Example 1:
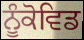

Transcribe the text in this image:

ਨੂੰਕੋਵਿਡ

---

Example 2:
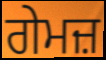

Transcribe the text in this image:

ਗੇਮਜ਼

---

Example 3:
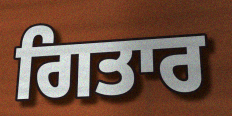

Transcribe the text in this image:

ਗਿਤਾਰ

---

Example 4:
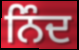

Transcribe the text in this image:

ਨਿੰਦ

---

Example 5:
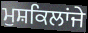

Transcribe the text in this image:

ਮੁਸ਼ਕਿਲਾਂਜੇ